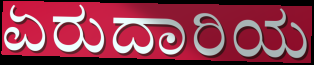
ಏರುದಾರಿಯ